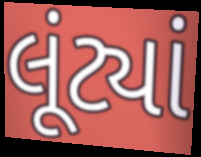
લૂંટ્યાં